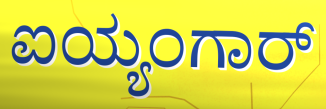
ಐಯ್ಯಂಗಾರ್